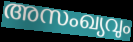
അസംഖ്യവും